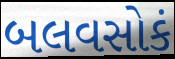
બલવસોકં